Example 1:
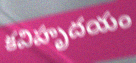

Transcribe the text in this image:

కవిహృదయం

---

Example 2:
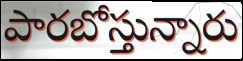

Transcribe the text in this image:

పారబోస్తున్నారు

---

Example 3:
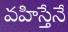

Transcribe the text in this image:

వహిస్తేనే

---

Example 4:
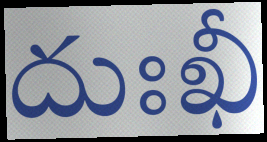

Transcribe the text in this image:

దుఃఖీ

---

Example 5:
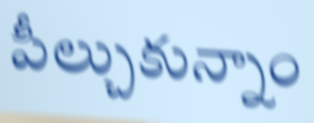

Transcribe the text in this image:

పీల్చుకున్నాం